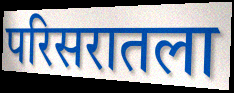
परिसरातला